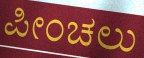
ಪೀಂಚಲು